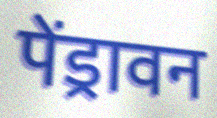
पेंड्रावन